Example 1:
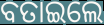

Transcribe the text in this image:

ବତାଇଲେ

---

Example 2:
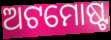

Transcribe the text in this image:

ଅଟମୋଷ୍ଟ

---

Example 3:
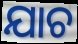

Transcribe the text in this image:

ଯାଚ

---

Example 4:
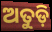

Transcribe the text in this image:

ଅତୁଡ଼ି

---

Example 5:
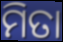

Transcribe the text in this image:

ମିତା